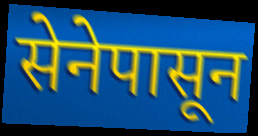
सेनेपासून